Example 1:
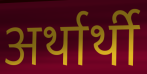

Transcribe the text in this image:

अर्थार्थी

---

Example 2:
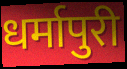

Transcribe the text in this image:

धर्मापुरी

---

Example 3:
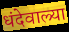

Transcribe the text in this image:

धंदेवाल्या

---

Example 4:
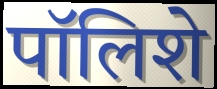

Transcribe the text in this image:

पॉलिशे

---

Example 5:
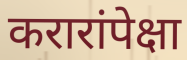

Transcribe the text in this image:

करारांपेक्षा